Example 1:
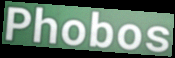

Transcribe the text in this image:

Phobos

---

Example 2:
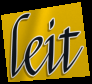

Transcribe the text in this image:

leit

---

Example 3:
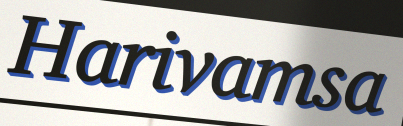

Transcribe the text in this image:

Harivamsa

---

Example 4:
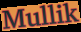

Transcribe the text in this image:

Mullik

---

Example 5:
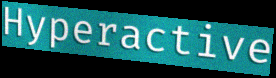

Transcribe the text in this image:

Hyperactive